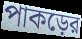
পাকড়ের